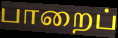
பாறைப்